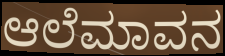
ಆಲೆಮಾವನ